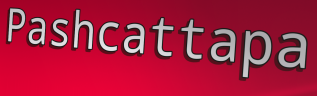
Pashcattapa